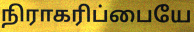
நிராகரிப்பையே